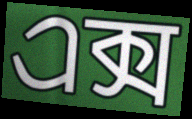
এক্স